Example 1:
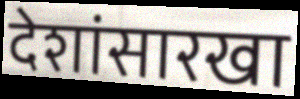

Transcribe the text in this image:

देशांसारखा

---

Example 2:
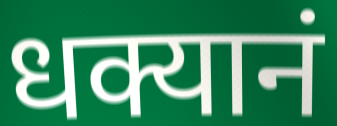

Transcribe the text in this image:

धक्यानं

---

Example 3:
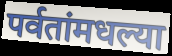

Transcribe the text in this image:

पर्वतांमधल्या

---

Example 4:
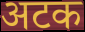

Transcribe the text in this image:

अटक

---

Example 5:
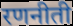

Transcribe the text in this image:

रणनीती